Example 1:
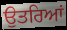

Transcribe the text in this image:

ਉਤਰਿਆਂ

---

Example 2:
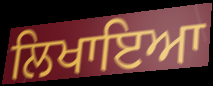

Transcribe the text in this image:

ਲਿਖਾਇਆ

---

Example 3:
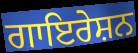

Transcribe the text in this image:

ਗਾਇਰੇਸ਼ਨ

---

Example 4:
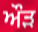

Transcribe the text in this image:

ਔਡ਼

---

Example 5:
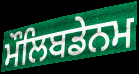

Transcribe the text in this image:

ਮੌਲਿਬਡੇਨਮ